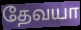
தேவயா